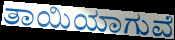
ತಾಯಿಯಾಗುವೆ